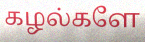
கழல்களே